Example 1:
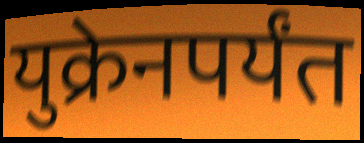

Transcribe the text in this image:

युक्रेनपर्यंत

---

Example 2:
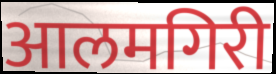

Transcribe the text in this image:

आलमगिरी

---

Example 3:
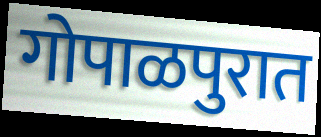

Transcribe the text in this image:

गोपाळपुरात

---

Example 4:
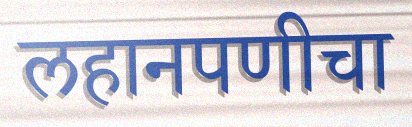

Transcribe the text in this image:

लहानपणीचा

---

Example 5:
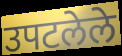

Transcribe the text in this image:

उपटलेले